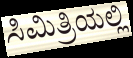
ಸಿಮಿತ್ರಿಯಲ್ಲಿ